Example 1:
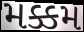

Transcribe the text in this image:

મક્કમ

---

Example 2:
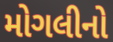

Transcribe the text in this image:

મોગલીનો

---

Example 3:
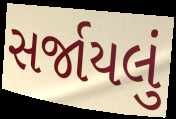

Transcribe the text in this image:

સર્જાયલું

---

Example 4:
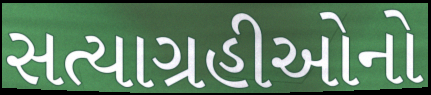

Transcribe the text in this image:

સત્યાગ્રહીઓનો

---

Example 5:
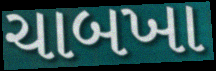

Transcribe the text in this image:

ચાબખા